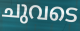
ചുവടെ